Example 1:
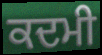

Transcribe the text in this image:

ਕਦਮੀ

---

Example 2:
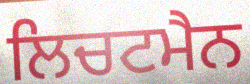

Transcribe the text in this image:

ਲਿਚਟਮੈਨ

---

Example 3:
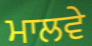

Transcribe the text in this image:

ਮਾਲਵੇ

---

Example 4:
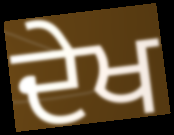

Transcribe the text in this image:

ਦੇਖ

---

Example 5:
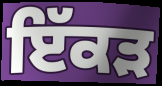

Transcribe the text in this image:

ਇੱਕੜ